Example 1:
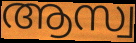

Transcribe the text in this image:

ആസ്വ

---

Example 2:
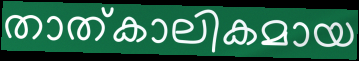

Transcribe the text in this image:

താത്കാലികമായ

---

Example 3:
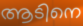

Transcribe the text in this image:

ആടിനെ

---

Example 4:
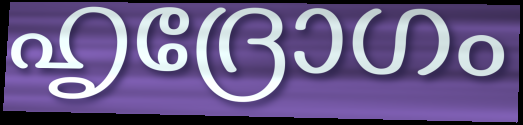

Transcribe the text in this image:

ഹൃദ്രോഗം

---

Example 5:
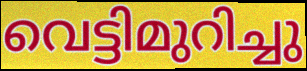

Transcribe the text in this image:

വെട്ടിമുറിച്ചു